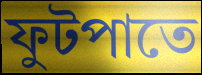
ফুটপাতে